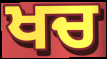
ਖਚ